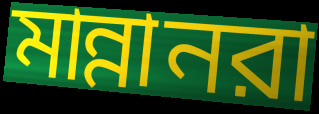
মান্নানরা